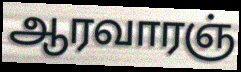
ஆரவாரஞ்